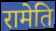
रामेति